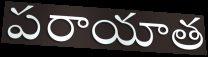
పరాయాత